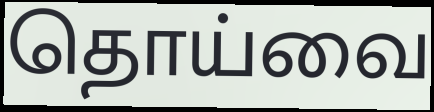
தொய்வை